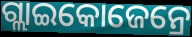
ଗ୍ଲାଇକୋଜେନ୍ରେ